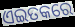
ଏଇତକରେ